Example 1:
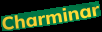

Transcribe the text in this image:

Charminar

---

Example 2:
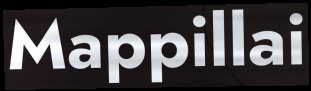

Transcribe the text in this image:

Mappillai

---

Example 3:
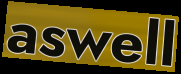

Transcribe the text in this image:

aswell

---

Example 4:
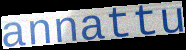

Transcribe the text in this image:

annattu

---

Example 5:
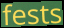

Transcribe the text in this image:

fests